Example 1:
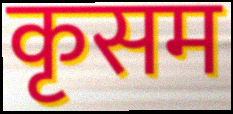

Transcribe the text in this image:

कृसम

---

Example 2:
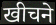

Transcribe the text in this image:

खीचने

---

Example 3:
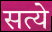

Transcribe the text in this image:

सत्ये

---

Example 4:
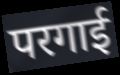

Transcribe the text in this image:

परगाई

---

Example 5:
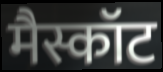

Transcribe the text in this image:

मैस्कॉट